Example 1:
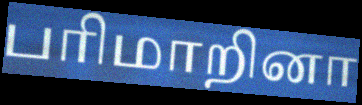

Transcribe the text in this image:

பரிமாறினா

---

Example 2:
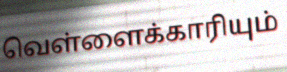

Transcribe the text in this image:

வெள்ளைக்காரியும்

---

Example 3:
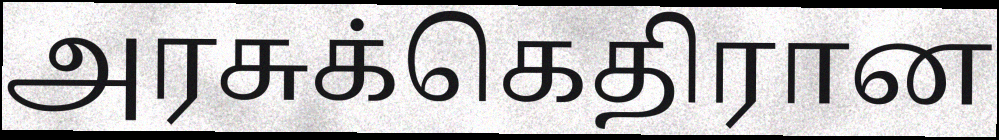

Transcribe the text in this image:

அரசுக்கெதிரான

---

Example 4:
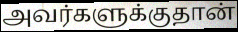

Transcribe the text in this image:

அவர்களுக்குதான்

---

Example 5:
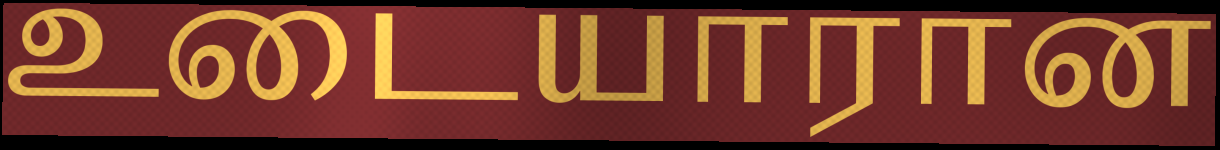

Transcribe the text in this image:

உடையாரான